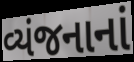
વ્યંજનાનાં